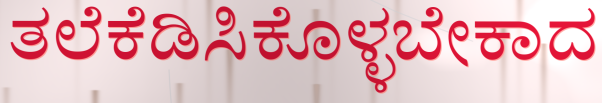
ತಲೆಕೆಡಿಸಿಕೊಳ್ಳಬೇಕಾದ